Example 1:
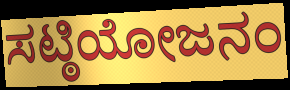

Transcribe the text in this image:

ಸಟ್ಠಿಯೋಜನಂ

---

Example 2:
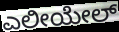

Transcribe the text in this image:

ಎಲೀಯೇಲ್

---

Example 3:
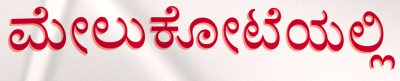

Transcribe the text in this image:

ಮೇಲುಕೋಟೆಯಲ್ಲಿ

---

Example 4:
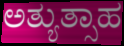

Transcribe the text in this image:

ಅತ್ಯುತ್ಸಾಹ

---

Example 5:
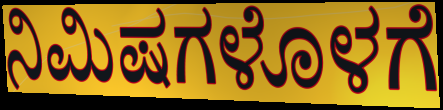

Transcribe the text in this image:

ನಿಮಿಷಗಳೊಳಗೆ